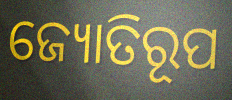
ଜ୍ୟୋତିରୂପ